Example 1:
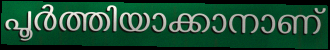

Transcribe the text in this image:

പൂർത്തിയാക്കാനാണ്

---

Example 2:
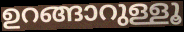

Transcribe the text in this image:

ഉറങ്ങാറുള്ളൂ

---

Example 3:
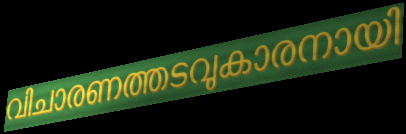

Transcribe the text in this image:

വിചാരണത്തടവുകാരനായി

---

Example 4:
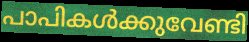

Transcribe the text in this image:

പാപികൾക്കുവേണ്ടി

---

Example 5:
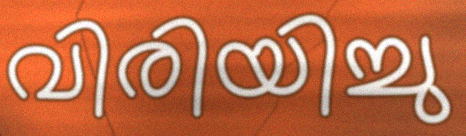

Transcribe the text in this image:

വിരിയിച്ചു